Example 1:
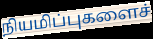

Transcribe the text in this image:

நியமிப்புகளைச்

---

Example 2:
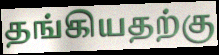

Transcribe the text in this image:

தங்கியதற்கு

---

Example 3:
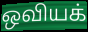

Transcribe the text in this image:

ஒவியக்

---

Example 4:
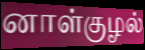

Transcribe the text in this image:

னாள்குழல்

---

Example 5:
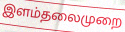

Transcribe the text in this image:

இளம்தலைமுறை